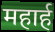
महार्ह